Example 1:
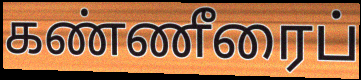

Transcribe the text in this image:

கண்ணீரைப்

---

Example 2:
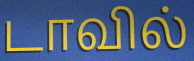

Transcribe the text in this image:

டாவில்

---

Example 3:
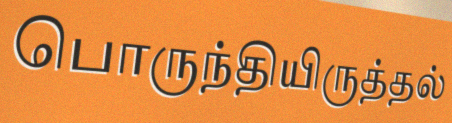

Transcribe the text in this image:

பொருந்தியிருத்தல்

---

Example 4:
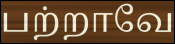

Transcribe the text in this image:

பற்றாவே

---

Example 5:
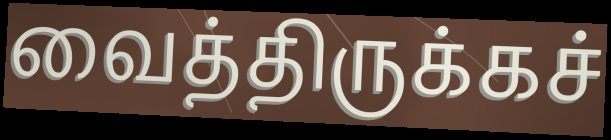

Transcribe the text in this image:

வைத்திருக்கச்